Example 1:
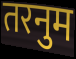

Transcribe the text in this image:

तरनुम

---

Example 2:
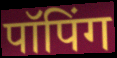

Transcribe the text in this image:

पॉपिंग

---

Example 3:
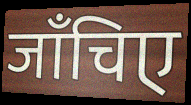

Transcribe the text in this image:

जाँचिए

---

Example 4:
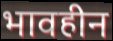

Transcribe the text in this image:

भावहीन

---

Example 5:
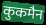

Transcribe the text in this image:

कुकमैन